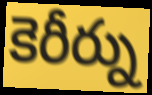
కెరీర్ను